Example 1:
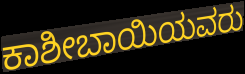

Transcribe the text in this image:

ಕಾಶೀಬಾಯಿಯವರು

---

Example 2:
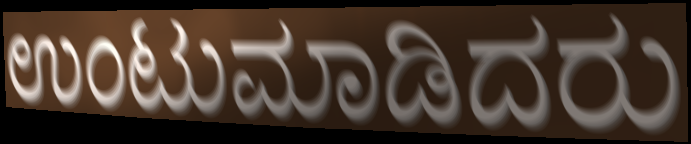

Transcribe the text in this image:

ಉಂಟುಮಾಡಿದರು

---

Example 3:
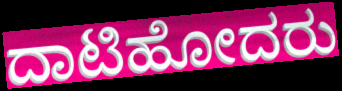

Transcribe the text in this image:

ದಾಟಿಹೋದರು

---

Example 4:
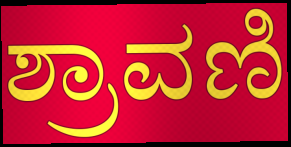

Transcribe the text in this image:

ಶ್ರಾವಣಿ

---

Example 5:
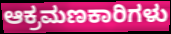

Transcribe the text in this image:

ಆಕ್ರಮಣಕಾರಿಗಳು